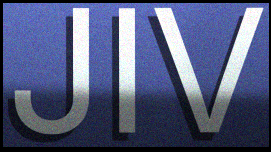
JIV